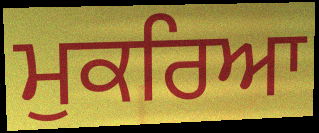
ਮੁਕਰਿਆ